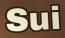
Sui